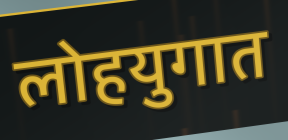
लोहयुगात